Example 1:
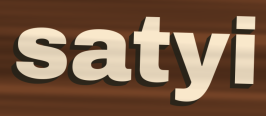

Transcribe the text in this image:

satyi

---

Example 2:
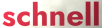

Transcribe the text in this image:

schnell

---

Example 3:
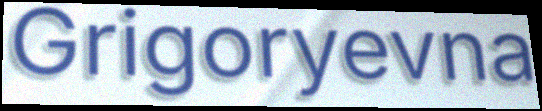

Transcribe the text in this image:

Grigoryevna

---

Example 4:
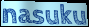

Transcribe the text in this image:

nasuku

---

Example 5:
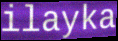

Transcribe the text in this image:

ilayka